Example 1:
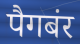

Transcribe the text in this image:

पैगबंर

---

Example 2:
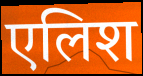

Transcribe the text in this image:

एलिश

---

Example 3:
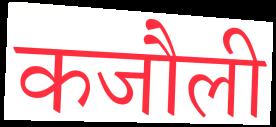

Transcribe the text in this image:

कजौली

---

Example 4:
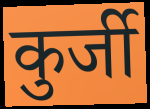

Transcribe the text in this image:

कुर्जी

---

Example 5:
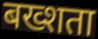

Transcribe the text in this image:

बख्शता